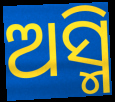
ଅସ୍ମି